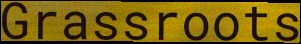
Grassroots